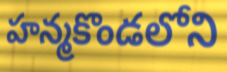
హన్మకొండలోని